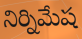
నిర్నిమేష